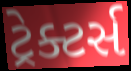
ટ્રેક્ટર્સ